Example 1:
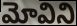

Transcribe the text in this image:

మోవిని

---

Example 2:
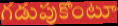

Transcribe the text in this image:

గడుపుకొంటూ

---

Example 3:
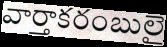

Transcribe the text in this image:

వార్తాకరంబులై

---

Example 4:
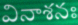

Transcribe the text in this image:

వినాశనః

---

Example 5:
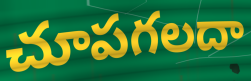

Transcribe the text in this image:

చూపగలదా